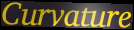
Curvature